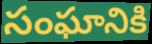
సంఘానికి